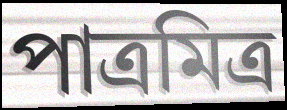
পাত্রমিত্র